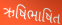
ઋષિભાષિત